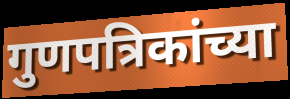
गुणपत्रिकांच्या